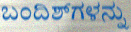
ಬಂದಿಶ್‌ಗಳನ್ನು